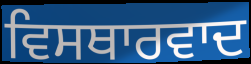
ਵਿਸਥਾਰਵਾਦ